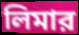
লিমার